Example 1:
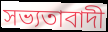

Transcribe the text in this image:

সভ্যতাবাদী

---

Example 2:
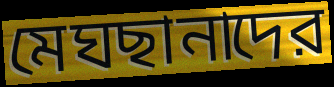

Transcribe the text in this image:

মেঘছানাদের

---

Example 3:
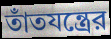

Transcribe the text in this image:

তাঁতযন্ত্রের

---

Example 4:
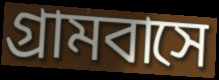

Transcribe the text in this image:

গ্রামবাসে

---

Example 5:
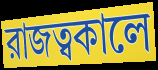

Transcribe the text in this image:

রাজত্বকালে